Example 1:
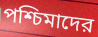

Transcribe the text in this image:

পশ্চিমাদের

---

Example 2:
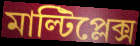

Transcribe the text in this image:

মাল্টিপ্লেক্স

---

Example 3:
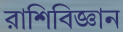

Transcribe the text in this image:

রাশিবিজ্ঞান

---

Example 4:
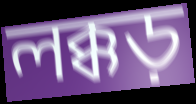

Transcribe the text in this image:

লক্কড়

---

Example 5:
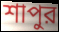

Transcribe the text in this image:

শাপুর